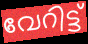
വേറിട്ട്